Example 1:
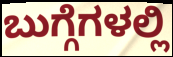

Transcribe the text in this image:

ಬುಗ್ಗೆಗಳಲ್ಲಿ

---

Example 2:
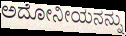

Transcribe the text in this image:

ಅದೋನೀಯನನ್ನು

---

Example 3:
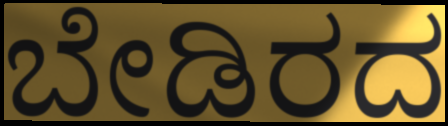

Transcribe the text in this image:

ಬೇಡಿರದ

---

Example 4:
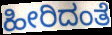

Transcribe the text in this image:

ಹೀರಿದಂತೆ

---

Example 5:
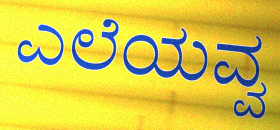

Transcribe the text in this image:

ಎಲೆಯವ್ವ